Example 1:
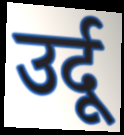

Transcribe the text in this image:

उर्दू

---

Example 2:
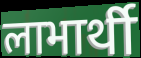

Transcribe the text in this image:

लाभार्थी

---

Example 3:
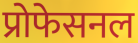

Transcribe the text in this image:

प्रोफेसनल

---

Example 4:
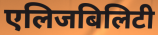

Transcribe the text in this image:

एलिजबिलिटी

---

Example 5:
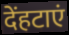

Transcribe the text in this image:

देंहटाएं